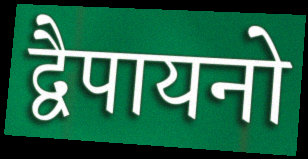
द्वैपायनो